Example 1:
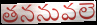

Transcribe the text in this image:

తననువలె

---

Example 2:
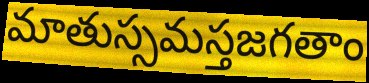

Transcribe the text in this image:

మాతుస్సమస్తజగతాం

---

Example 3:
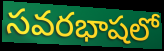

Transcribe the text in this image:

సవరభాషలో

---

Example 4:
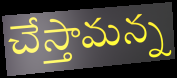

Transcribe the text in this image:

చేస్తామన్న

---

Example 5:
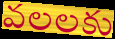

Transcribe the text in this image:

వలలకు